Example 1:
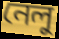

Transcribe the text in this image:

নেলু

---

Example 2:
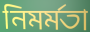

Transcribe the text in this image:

নিমর্মতা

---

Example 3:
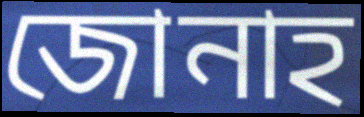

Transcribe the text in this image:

জোনাহ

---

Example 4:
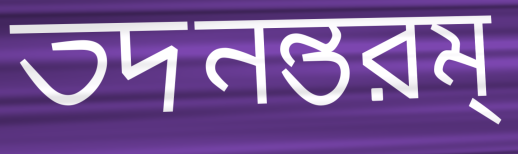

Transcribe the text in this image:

তদনন্তরম্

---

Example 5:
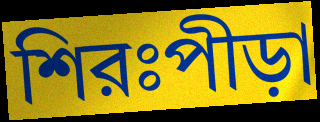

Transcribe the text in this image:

শিরঃপীড়া